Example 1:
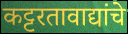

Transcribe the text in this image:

कट्टरतावाद्यांचे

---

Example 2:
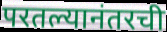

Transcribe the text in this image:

परतल्यानंतरची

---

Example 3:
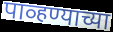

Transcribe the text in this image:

पाव्हण्याच्या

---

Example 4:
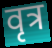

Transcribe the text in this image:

वृत्र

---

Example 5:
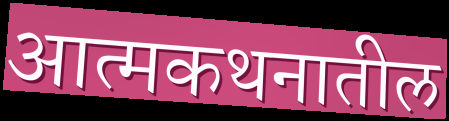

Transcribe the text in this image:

आत्मकथनातील